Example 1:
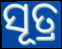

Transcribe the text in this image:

ସୂତ୍ର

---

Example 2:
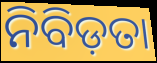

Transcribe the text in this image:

ନିବିଡ଼ତା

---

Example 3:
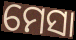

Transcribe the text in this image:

ମେସା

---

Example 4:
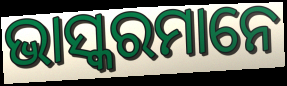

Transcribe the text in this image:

ଭାସ୍କରମାନେ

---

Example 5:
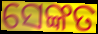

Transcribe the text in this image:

ସେଙ୍କତ